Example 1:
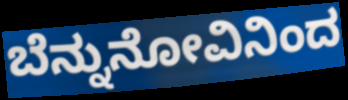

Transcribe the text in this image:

ಬೆನ್ನುನೋವಿನಿಂದ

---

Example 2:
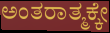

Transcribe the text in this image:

ಅಂತರಾತ್ಮಕ್ಕೇ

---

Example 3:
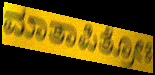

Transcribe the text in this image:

ಮಾತಾಪಿತ್ರೋಃ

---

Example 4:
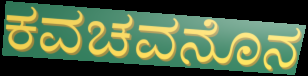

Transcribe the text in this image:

ಕವಚವನೊನ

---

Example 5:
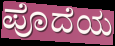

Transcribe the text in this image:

ಪೊದೆಯ